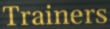
Trainers